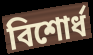
বিশোর্ধ